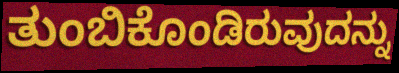
ತುಂಬಿಕೊಂಡಿರುವುದನ್ನು